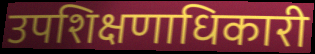
उपशिक्षणाधिकारी